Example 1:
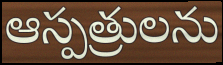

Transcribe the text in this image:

ఆస్పత్రులను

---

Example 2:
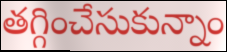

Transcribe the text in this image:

తగ్గించేసుకున్నాం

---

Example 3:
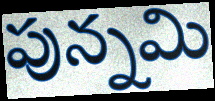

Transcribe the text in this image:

పున్నమి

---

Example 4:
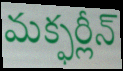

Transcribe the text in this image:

మక్ఫర్లీన్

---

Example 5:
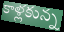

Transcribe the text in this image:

కాళ్లకున్న